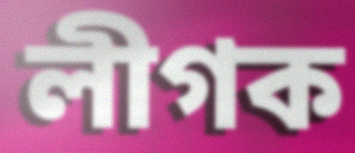
লীগক